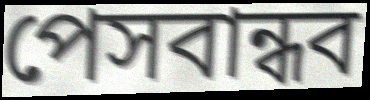
পেসবান্ধব